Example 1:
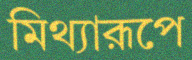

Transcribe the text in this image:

মিথ্যারূপে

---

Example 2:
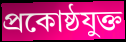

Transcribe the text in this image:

প্রকোষ্ঠযুক্ত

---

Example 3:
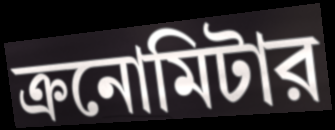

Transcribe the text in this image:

ক্রনোমিটার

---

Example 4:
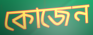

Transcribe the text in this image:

কোজেন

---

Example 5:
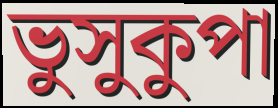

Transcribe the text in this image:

ভুসুকুপা